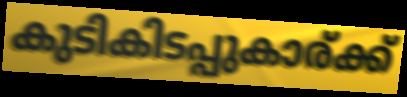
കുടികിടപ്പുകാര്ക്ക്